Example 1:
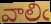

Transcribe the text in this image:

వాలిఁ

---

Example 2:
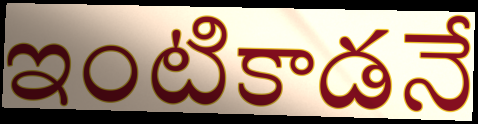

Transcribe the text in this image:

ఇంటికాడనే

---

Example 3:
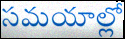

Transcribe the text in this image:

సమయాల్లో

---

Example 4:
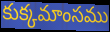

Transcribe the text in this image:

కుక్కమాంసము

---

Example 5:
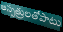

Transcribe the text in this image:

ఆస్పత్రులతోపాటు